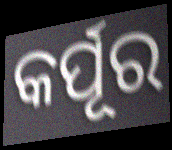
କର୍ପୂର